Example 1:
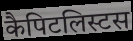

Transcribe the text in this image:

कैपिटलिस्टस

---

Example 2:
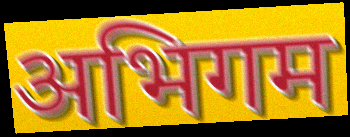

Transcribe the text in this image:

अभिगम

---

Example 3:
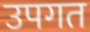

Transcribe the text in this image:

उपगत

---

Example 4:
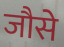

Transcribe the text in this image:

जौसे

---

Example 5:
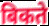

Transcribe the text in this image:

बिकते